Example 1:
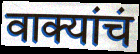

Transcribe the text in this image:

वाक्यांचं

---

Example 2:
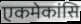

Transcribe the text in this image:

एकमेकांसि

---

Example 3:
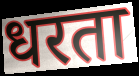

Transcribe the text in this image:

धरता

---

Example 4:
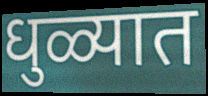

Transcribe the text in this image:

धुळ्यात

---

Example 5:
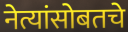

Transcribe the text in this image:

नेत्यांसोबतचे